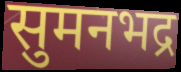
सुमनभद्र